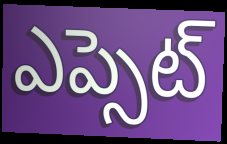
ఎప్సెట్